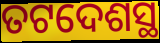
ତଟଦେଶସ୍ଥ